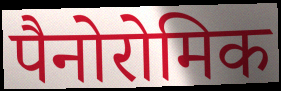
पैनोरोमिक